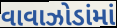
વાવાઝોડાંમાં